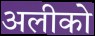
अलीको